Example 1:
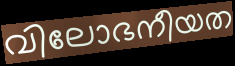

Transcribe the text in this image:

വിലോഭനീയത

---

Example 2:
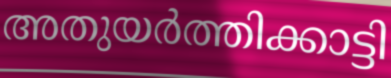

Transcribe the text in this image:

അതുയർത്തിക്കാട്ടി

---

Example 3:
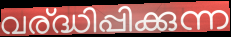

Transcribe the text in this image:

വര്ദ്ധിപ്പിക്കുന്ന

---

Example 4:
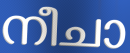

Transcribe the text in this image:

നീചാ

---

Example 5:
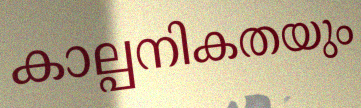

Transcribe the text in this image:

കാല്പനികതയും